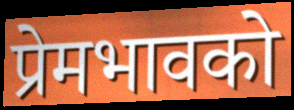
प्रेमभावको